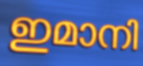
ഇമാനി